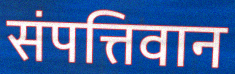
संपत्तिवान